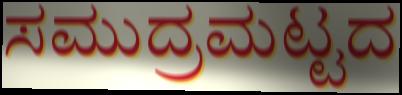
ಸಮುದ್ರಮಟ್ಟದ